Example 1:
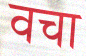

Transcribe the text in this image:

वचा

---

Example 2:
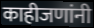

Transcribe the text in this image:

काहीजणांनी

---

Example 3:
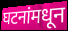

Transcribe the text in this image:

घटनांमधून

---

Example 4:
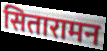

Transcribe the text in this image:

सितारामन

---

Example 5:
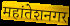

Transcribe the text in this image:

महांतेशनगर